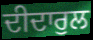
ਦੀਦਾਰੁਲ